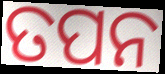
ତପନ